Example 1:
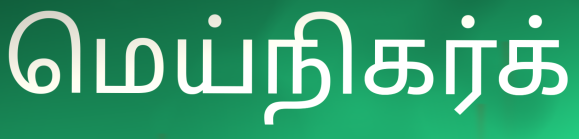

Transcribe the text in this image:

மெய்நிகர்க்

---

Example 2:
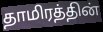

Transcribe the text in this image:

தாமிரத்தின்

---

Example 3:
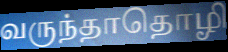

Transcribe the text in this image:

வருந்தாதொழி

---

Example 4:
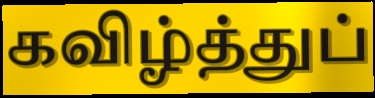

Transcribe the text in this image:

கவிழ்த்துப்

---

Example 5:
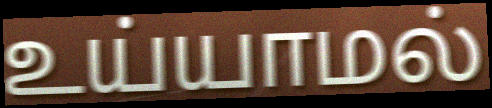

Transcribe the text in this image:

உய்யாமல்